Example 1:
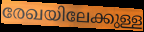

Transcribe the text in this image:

രേഖയിലേക്കുള്ള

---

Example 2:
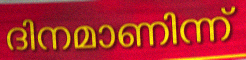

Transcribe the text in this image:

ദിനമാണിന്ന്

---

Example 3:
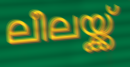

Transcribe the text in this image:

ലീലയ്ക്ക്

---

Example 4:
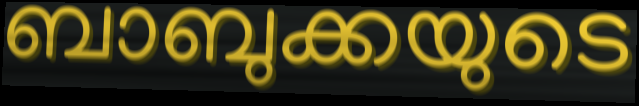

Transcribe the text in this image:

ബാബുക്കയുടെ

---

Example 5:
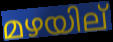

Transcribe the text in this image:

മഴയില്